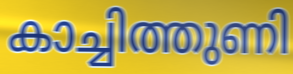
കാച്ചിത്തുണി